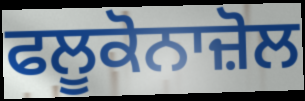
ਫਲੂਕੋਨਾਜ਼ੋਲ